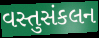
વસ્તુસંકલન